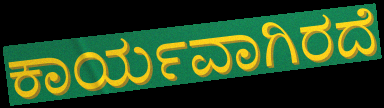
ಕಾರ್ಯವಾಗಿರದೆ